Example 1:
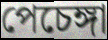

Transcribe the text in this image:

পেচেঙ্গা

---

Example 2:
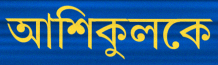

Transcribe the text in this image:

আশিকুলকে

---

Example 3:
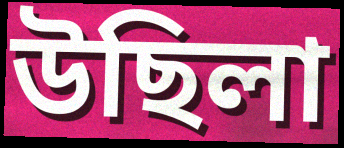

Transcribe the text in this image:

উছিলা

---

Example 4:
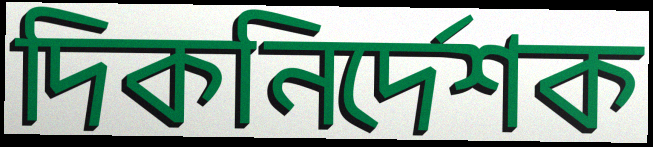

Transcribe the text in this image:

দিকনির্দেশক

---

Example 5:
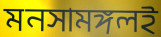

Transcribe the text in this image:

মনসামঙ্গলই